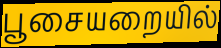
பூசையறையில்